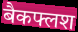
बैकफ्लश